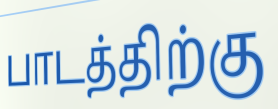
பாடத்திற்கு